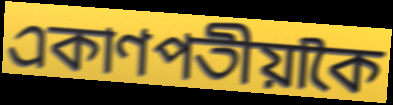
একাণপতীয়াকৈ